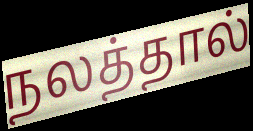
நலத்தால்